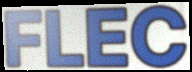
FLEC